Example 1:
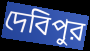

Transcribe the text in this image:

দেবিপুর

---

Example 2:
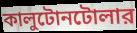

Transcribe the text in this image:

কালুটোনটোলার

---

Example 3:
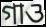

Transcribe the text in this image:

গাও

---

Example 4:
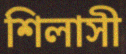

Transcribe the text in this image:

শিলাসী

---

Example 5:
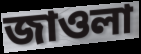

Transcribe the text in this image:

জাওলা